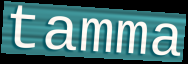
tamma